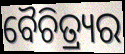
ବୈଚିତ୍ର୍ୟର